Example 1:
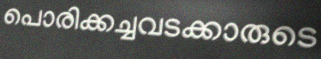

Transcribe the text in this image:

പൊരിക്കച്ചവടക്കാരുടെ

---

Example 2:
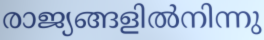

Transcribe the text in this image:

രാജ്യങ്ങളിൽനിന്നു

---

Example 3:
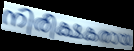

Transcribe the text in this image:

നിരീക്ഷകരായ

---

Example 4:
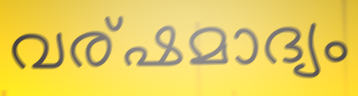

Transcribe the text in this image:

വര്ഷമാദ്യം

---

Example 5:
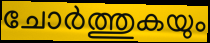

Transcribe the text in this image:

ചോർത്തുകയും